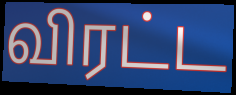
விரட்ட